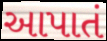
આપાતં